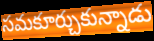
సమకూర్చుకున్నాడు